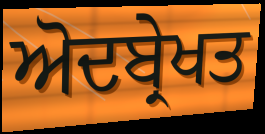
ਅੋਦਬ੍ਰੇਖਤ